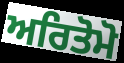
ਅਰਿਤੋਮੋ